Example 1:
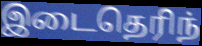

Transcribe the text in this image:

இடைதெரிந்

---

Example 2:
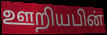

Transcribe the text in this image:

ஊறியபின்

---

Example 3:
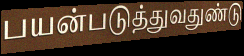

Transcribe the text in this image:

பயன்படுத்துவதுண்டு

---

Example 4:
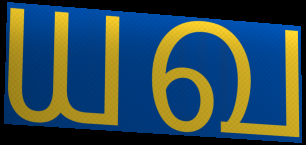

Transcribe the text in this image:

யவ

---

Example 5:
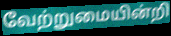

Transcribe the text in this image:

வேற்றுமையின்றி